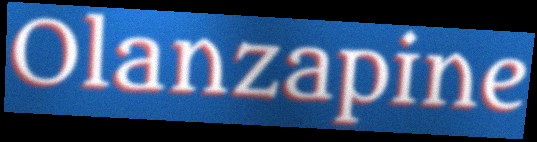
Olanzapine